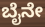
ಬೈನೇ